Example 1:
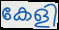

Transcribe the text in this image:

കേളി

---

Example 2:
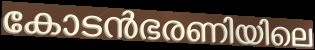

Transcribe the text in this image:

കോടൻഭരണിയിലെ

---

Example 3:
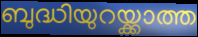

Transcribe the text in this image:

ബുദ്ധിയുറയ്ക്കാത്ത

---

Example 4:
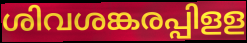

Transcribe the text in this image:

ശിവശങ്കരപ്പിളള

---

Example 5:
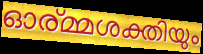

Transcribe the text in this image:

ഓര്മ്മശക്തിയും